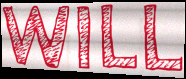
WILL